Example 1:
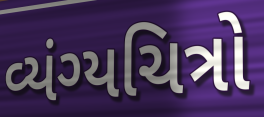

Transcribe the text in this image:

વ્યંગ્યચિત્રો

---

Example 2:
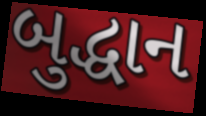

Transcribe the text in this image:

બુદ્ધાન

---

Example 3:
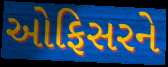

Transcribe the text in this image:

ઓફિસરને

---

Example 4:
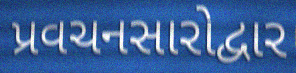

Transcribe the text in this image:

પ્રવચનસારોદ્વાર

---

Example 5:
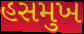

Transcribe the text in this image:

હસમુખ